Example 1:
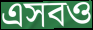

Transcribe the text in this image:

এসবও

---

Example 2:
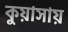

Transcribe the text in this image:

কুয়াসায়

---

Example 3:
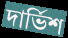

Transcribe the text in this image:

দার্ভিশ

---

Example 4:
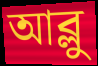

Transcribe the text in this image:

আব্লু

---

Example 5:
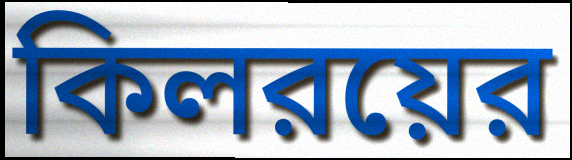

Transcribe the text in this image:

কিলরয়ের